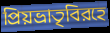
প্রিয়ভ্রাতৃবিরহে